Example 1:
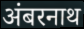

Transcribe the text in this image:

अंबरनाथ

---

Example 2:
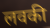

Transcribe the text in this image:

लवकी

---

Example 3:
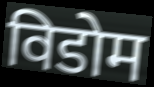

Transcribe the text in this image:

विडोम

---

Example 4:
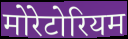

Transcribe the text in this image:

मोरेटोरियम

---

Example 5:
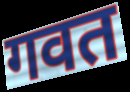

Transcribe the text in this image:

गवत